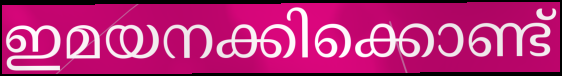
ഇമയനക്കിക്കൊണ്ട്